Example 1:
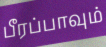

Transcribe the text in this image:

பீரப்பாவும்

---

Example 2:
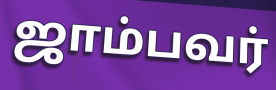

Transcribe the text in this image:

ஜாம்பவர்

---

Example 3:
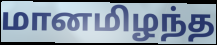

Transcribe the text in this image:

மானமிழந்த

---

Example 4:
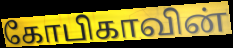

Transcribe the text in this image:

கோபிகாவின்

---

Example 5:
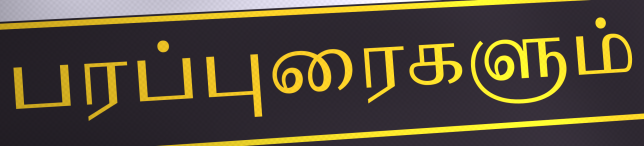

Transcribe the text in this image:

பரப்புரைகளும்